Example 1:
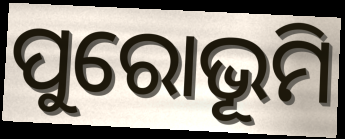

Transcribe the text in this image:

ପୁରୋଭୂମି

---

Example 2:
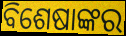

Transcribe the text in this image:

ବିଶେଷାଙ୍କର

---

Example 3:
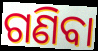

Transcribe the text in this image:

ଗଣିବା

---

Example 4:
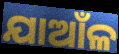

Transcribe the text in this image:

ଯାଆଁଳ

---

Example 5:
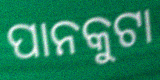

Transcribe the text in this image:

ପାନକୁଟା